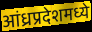
आंध्रप्रदेशमध्ये